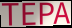
TEPA